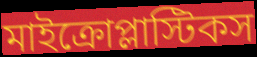
মাইক্রোপ্লাস্টিকস